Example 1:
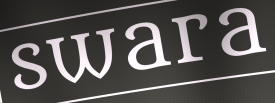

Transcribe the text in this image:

swara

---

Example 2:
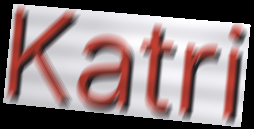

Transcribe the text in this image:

Katri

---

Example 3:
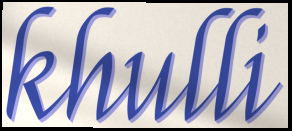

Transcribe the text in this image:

khulli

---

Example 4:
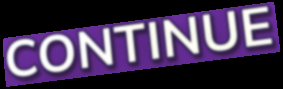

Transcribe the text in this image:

CONTINUE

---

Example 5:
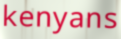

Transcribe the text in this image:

kenyans